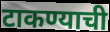
टाकण्याची